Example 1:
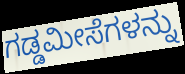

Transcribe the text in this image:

ಗಡ್ಡಮೀಸೆಗಳನ್ನು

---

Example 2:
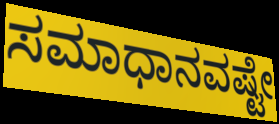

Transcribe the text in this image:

ಸಮಾಧಾನವಷ್ಟೇ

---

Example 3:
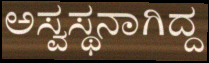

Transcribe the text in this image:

ಅಸ್ವಸ್ಥನಾಗಿದ್ದ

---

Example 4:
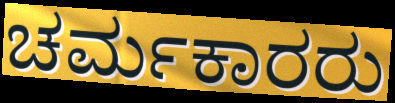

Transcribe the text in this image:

ಚರ್ಮಕಾರರು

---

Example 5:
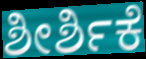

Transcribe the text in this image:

ಶೀರ್ಶಿಕೆ